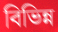
বিভিন্ন